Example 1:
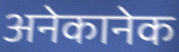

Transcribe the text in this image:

अनेकानेक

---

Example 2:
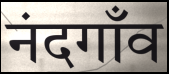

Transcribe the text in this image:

नंदगाँव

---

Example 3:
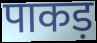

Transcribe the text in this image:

पाकड़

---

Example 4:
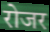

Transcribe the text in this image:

रोजर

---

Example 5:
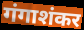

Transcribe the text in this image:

गंगाशंकर